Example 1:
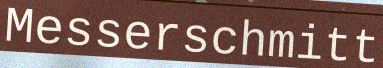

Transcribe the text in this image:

Messerschmitt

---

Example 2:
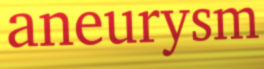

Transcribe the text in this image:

aneurysm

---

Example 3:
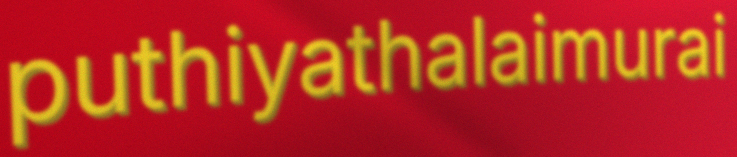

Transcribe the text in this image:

puthiyathalaimurai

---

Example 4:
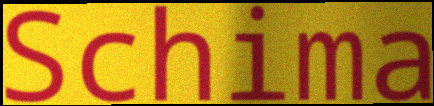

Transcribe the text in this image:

Schima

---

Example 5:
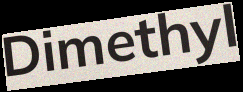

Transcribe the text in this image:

Dimethyl